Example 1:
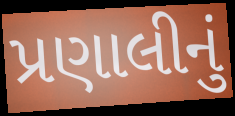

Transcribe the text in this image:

પ્રણાલીનું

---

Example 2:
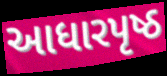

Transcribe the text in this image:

આધારપૃષ્ઠ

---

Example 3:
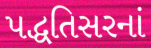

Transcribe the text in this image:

પદ્ધતિસરનાં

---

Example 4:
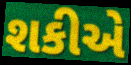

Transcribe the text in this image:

શકીએ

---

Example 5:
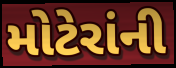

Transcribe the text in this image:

મોટેરાંની